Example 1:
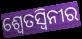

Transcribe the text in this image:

ଶ୍ୱେତସ୍ୱିନୀର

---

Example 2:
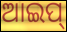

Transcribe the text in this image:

ଆଇପ୍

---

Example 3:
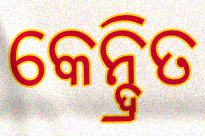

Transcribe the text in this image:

କେନ୍ଦ୍ରିତ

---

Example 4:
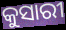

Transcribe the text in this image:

କୁସାରୀ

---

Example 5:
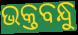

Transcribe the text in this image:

ଭକ୍ତବନ୍ଧୁ